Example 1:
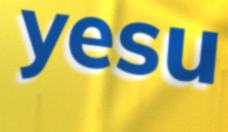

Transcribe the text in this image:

yesu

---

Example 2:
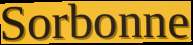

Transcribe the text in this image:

Sorbonne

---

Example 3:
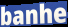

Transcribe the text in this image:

banhe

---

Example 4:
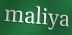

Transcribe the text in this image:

maliya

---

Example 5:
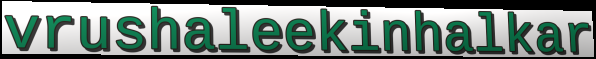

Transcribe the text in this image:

vrushaleekinhalkar